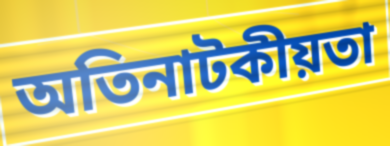
অতিনাটকীয়তা